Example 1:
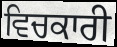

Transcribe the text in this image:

ਵਿਚਕਾਰੀ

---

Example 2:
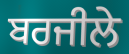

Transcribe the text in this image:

ਬਰਜੀਲੇ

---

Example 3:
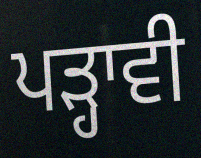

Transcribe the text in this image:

ਪੜ੍ਹਾਵੀ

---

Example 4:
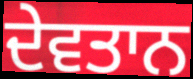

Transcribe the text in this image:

ਦੇਵਤਾਨ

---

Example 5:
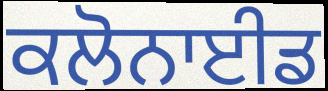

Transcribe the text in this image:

ਕਲੋਨਾਈਡ